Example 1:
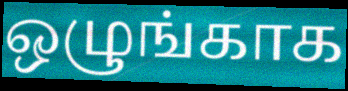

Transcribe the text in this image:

ஒழுங்காக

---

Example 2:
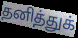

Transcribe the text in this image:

தனித்துக்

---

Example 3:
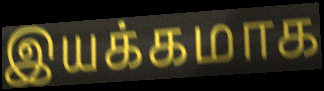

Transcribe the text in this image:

இயக்கமாக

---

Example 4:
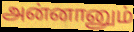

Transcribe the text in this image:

அன்னானும்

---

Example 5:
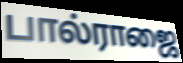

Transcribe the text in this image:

பால்ராஜை